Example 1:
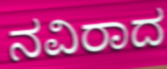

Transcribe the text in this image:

ನವಿರಾದ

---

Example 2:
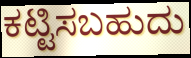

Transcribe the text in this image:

ಕಟ್ಟಿಸಬಹುದು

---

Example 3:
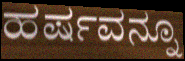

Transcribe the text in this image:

ಹರ್ಷವನ್ನೂ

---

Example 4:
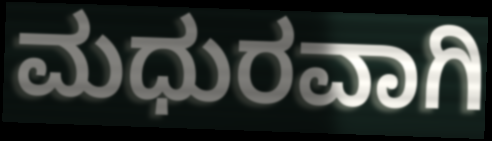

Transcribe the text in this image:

ಮಧುರವಾಗಿ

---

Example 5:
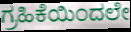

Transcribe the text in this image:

ಗ್ರಹಿಕೆಯಿಂದಲೇ